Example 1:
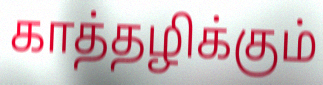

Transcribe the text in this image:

காத்தழிக்கும்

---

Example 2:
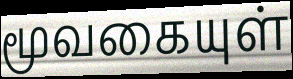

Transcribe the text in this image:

மூவகையுள்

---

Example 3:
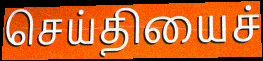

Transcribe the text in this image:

செய்தியைச்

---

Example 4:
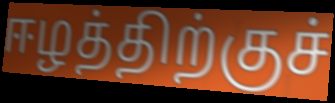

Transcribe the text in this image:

ஈழத்திற்குச்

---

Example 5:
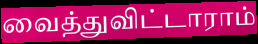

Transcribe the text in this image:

வைத்துவிட்டாராம்